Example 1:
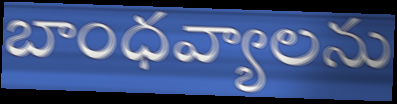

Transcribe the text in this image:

బాంధవ్యాలను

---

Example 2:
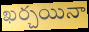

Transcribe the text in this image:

ఖర్చయినా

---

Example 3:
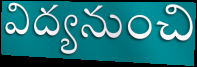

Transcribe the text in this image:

విద్యనుంచి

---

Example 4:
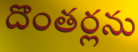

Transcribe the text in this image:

దొంతర్లను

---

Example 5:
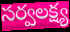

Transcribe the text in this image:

సర్వలక్ష్య